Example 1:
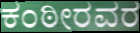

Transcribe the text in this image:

ಕಂಠೀರವರ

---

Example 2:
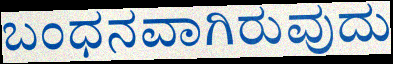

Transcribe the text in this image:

ಬಂಧನವಾಗಿರುವುದು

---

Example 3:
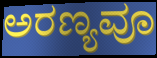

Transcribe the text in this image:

ಅರಣ್ಯವೂ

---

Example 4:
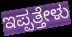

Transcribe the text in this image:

ಇಪ್ಪತ್ತೇಳು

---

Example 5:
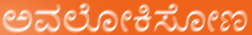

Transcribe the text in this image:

ಅವಲೋಕಿಸೋಣ